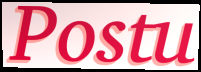
Postu